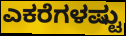
ಎಕರೆಗಳಷ್ಟು